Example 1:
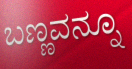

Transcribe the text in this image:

ಬಣ್ಣವನ್ನೂ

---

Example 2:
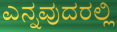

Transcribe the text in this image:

ಎನ್ನವುದರಲ್ಲಿ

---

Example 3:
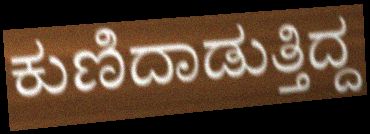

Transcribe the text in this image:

ಕುಣಿದಾಡುತ್ತಿದ್ದ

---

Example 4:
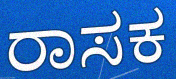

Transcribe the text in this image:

ರಾಸಕ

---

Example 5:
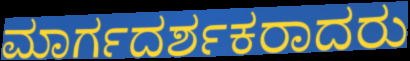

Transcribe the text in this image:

ಮಾರ್ಗದರ್ಶಕರಾದರು